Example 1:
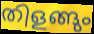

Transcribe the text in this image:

തിളങ്ങും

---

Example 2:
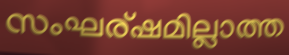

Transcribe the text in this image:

സംഘര്ഷമില്ലാത്ത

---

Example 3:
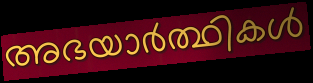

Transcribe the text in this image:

അഭയാർത്ഥികൾ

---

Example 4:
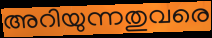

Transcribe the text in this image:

അറിയുന്നതുവരെ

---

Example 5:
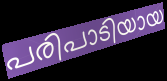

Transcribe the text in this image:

പരിപാടിയായ